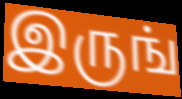
இருங்